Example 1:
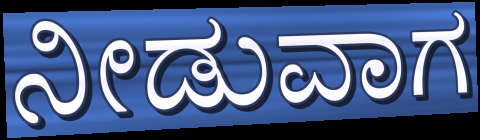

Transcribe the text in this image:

ನೀಡುವಾಗ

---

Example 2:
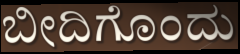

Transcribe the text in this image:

ಬೀದಿಗೊಂದು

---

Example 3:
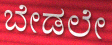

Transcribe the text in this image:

ಬೇಡಲೇ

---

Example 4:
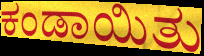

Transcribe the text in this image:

ಕಂಡಾಯಿತು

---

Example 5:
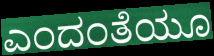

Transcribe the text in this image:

ಎಂದಂತೆಯೂ